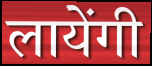
लायेंगी